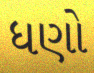
ધણો